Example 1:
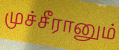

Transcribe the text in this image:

முச்சீரானும்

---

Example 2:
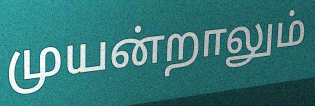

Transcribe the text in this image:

முயன்றாலும்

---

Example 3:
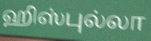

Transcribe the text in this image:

ஹிஸ்புல்லா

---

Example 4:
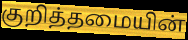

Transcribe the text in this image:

குறித்தமையின்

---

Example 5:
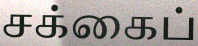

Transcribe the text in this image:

சக்கைப்